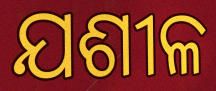
ଯଶୀଳ